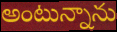
అంటున్నాను